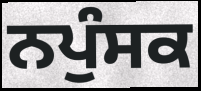
ਨਪੁੰਸਕ